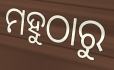
ମହୁଠାରୁ